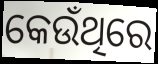
କେଉଁଥିରେ